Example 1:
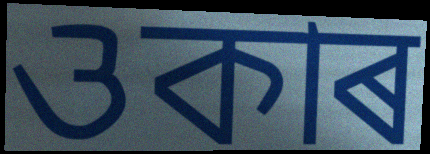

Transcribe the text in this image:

ওকাৰ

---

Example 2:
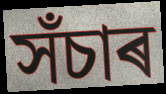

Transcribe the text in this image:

সঁচাৰ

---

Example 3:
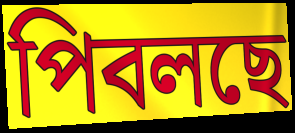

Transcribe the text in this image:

পিবলছে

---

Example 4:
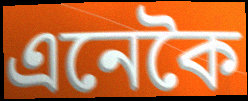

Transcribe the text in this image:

এনেকৈ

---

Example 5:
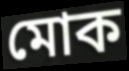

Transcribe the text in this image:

মোক